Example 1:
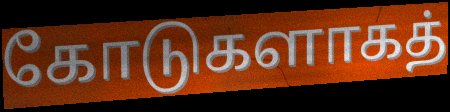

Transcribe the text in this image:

கோடுகளாகத்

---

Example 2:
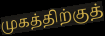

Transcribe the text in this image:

முகத்திற்குத்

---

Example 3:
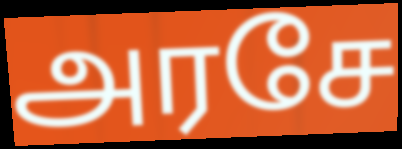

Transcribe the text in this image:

அரசே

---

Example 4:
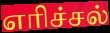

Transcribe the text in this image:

எரிச்சல்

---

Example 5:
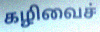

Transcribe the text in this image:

கழிவைச்